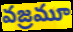
వజ్రమూ